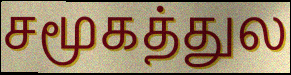
சமூகத்துல